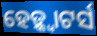
ହେଡ଼୍କ୍ୱାଟର୍ସ